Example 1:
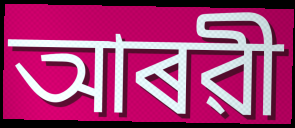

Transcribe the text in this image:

আৰৱী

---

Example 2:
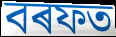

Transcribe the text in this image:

বৰফত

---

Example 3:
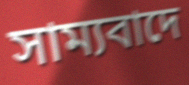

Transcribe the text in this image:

সাম্যবাদে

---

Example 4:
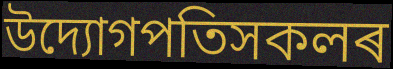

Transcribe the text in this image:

উদ্যোগপতিসকলৰ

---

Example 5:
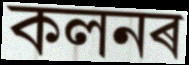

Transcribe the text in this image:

কলনৰ